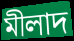
মীলাদ